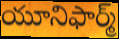
యూనిఫార్మ్